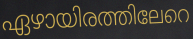
ഏഴായിരത്തിലേറെ